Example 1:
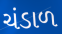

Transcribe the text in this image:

ચંડાળ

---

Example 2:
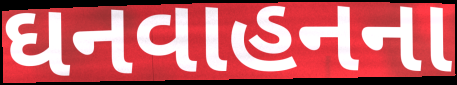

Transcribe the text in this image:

ઘનવાહનના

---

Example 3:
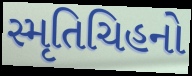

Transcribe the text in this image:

સ્મૃતિચિહનો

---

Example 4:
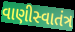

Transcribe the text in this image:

વાણીસ્વાતંત્ર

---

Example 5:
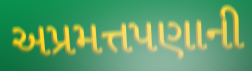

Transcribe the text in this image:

અપ્રમત્તપણાની